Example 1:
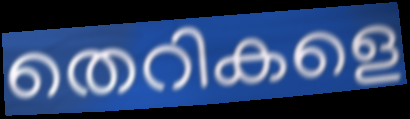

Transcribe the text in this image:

തെറികളെ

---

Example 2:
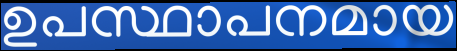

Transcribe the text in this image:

ഉപസ്ഥാപനമായ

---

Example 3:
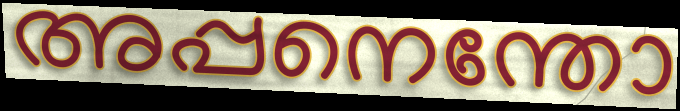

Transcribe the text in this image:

അപ്പനെന്തോ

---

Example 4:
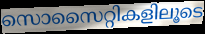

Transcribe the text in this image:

സൊസൈറ്റികളിലൂടെ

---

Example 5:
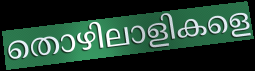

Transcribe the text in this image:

തൊഴിലാളികളെ